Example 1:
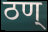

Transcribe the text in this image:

ठण्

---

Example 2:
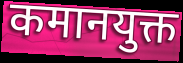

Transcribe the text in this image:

कमानयुक्त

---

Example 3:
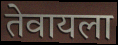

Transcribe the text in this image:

तेवायला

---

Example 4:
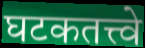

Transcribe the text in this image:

घटकतत्त्वे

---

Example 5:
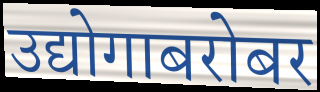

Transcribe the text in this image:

उद्योगाबरोबर